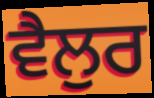
ਵੈਲੁਰ